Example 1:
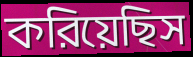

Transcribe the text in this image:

করিয়েছিস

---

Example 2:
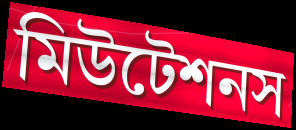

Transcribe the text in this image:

মিউটেশনস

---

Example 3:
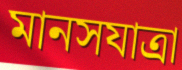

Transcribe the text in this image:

মানসযাত্রা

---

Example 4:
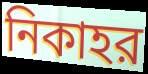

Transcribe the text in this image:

নিকাহর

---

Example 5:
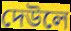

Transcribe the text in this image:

দেউলে